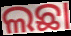
ଲଛା